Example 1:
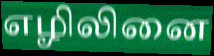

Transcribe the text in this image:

எழிலினை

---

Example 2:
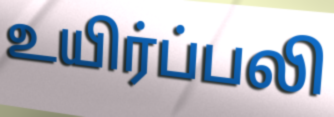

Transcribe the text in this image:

உயிர்ப்பலி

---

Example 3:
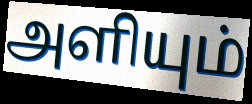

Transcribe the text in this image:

அளியும்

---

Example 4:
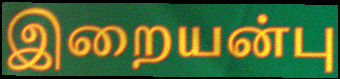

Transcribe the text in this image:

இறையன்பு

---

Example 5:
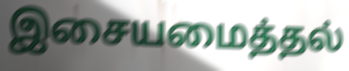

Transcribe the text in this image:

இசையமைத்தல்